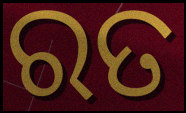
ରତ